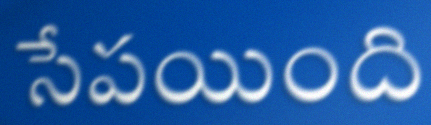
సేపయింది